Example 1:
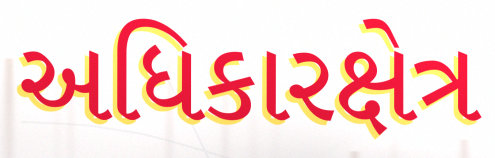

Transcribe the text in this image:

અધિકારક્ષેત્ર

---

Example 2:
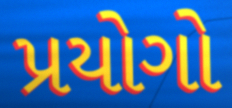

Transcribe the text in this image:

પ્રયોગો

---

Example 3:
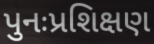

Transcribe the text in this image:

પુનઃપ્રશિક્ષણ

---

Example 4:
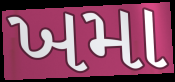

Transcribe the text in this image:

ખમા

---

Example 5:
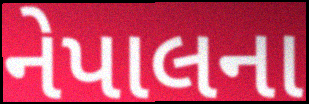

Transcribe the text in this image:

નેપાલના